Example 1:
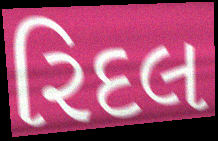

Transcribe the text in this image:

રિદલ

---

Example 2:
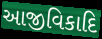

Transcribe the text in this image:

આજીવિકાદિ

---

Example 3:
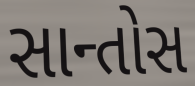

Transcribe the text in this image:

સાન્તોસ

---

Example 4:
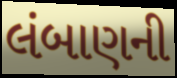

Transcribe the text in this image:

લંબાણની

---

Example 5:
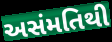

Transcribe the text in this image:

અસંમતિથી